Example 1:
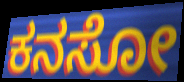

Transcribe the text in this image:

ಕನಸೋ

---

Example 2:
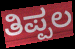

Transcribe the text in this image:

ತಿಪ್ಪಲ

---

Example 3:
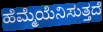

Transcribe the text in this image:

ಹೆಮ್ಮೆಯೆನಿಸುತ್ತದೆ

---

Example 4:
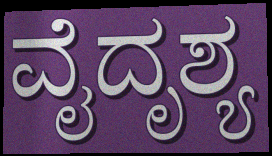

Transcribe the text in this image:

ವೈದೃಶ್ಯ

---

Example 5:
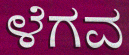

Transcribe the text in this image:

ಳೆಗವ